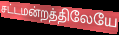
சட்டமன்றத்திலேயே